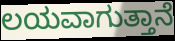
ಲಯವಾಗುತ್ತಾನೆ